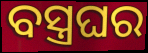
ବସ୍ତ୍ରଘର